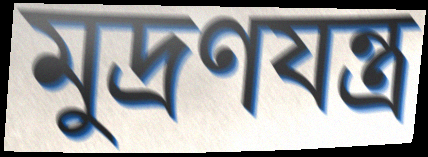
মুদ্রণযন্ত্র